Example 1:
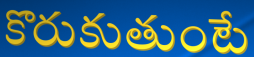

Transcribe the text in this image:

కొరుకుతుంటే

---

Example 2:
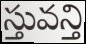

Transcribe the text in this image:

స్తువన్తి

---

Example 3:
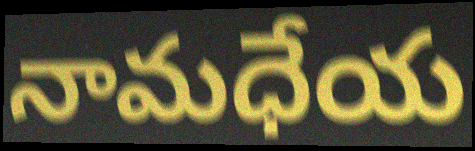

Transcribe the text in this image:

నామధేయ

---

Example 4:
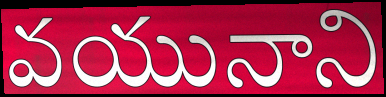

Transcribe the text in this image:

వయునాని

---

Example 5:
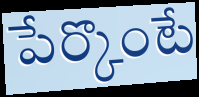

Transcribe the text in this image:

పేర్కొంటే